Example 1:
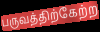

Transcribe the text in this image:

பருவத்திற்கேற்ற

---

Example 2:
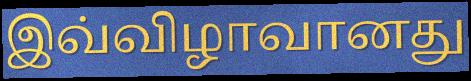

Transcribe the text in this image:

இவ்விழாவானது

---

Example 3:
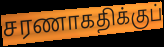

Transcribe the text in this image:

சரணாகதிக்குப்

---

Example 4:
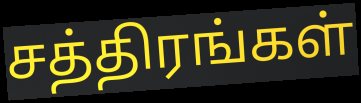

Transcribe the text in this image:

சத்திரங்கள்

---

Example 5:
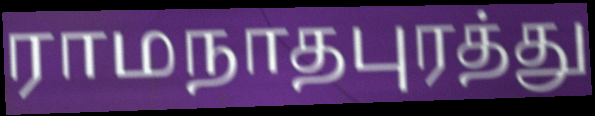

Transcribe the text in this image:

ராமநாதபுரத்து